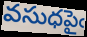
వసుధపైఁ